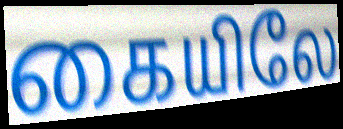
கையிலே